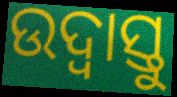
ଉଦ୍ବାସ୍ତୁ